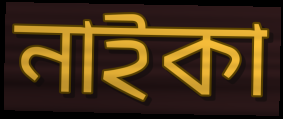
নাইকা